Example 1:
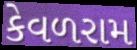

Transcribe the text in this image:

કેવળરામ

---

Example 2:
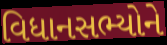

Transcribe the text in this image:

વિધાનસભ્યોને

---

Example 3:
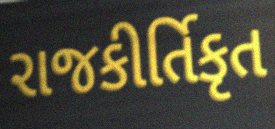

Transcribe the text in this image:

રાજકીર્તિકૃત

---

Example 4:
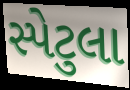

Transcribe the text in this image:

સ્પેટુલા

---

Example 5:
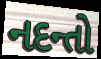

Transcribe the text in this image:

નદન્તો